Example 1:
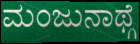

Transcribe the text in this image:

ಮಂಜುನಾಥ್ಗೆ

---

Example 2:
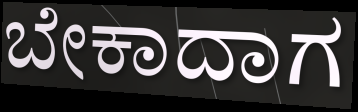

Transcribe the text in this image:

ಬೇಕಾದಾಗ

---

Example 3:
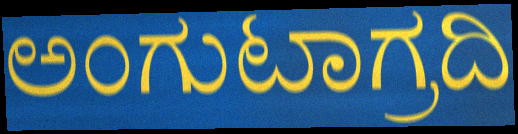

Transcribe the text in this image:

ಅಂಗುಟಾಗ್ರದಿ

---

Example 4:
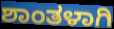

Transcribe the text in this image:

ಶಾಂತಳಾಗಿ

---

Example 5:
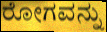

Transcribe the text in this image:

ರೋಗವನ್ನು